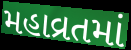
મહાવ્રતમાં